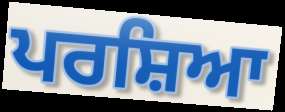
ਪਰਸ਼ਿਆ